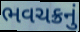
ભવચક્રનું